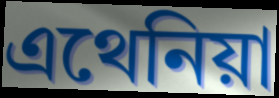
এথেনিয়া